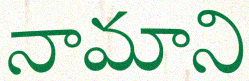
నామాని